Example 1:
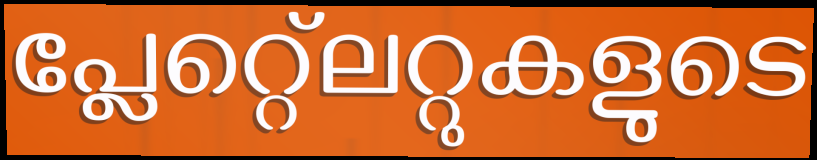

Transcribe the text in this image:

പ്ലേറ്റ്ലെറ്റുകളുടെ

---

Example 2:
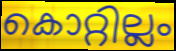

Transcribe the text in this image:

കൊറ്റില്ലം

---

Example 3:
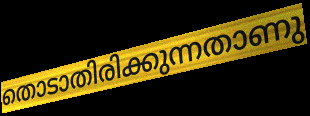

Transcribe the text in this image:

തൊടാതിരിക്കുന്നതാണു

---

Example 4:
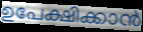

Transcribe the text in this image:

ഉപേക്ഷിക്കാൻ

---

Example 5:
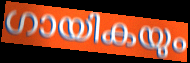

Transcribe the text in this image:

ഗായികയും